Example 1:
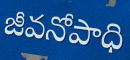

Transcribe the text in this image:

జీవనోపాధి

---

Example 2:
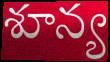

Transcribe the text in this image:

శూన్య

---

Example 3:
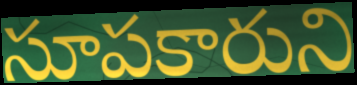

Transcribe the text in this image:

సూపకారుని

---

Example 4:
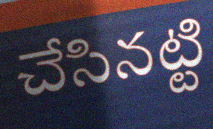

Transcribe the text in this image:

చేసినట్టి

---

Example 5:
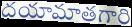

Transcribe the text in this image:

దయామాతగారి